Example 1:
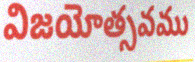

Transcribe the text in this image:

విజయోత్సవము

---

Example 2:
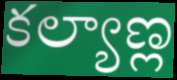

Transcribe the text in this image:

కల్యాణ్ల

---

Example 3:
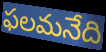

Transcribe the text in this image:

ఫలమనేది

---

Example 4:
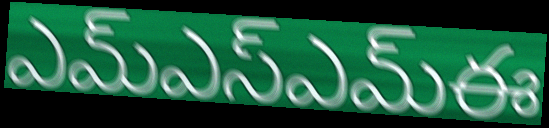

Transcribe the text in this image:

ఎమ్ఎస్ఎమ్ఈ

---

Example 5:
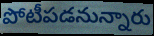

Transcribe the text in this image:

పోటీపడనున్నారు